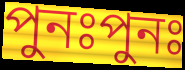
পুনঃপুনঃ